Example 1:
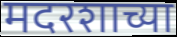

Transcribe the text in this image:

मदरशाच्या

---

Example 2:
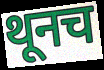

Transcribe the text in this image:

थूनच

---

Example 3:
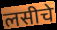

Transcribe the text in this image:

लसीचे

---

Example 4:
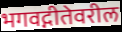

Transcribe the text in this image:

भगवद्गीतेवरील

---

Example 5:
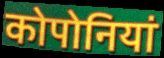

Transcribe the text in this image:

कोपोनियां